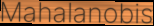
Mahalanobis